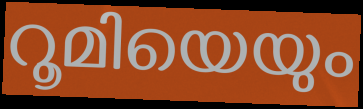
റൂമിയെയും